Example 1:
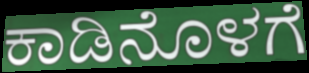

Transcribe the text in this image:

ಕಾಡಿನೊಳಗೆ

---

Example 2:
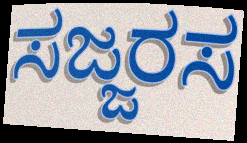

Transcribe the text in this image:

ಸಜ್ಜರಸ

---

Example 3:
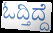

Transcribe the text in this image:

ಓದ್ತಿದ್ದೆ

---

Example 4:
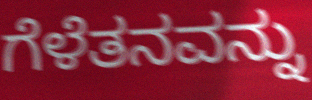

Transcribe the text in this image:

ಗೆಳೆತನವನ್ನು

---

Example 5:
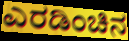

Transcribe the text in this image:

ಎರಡಿಂಚಿನ